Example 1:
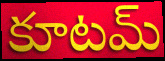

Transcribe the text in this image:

కూటమ్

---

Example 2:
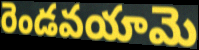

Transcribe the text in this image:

రెండవయామె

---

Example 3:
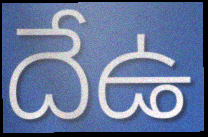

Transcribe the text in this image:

దేఉ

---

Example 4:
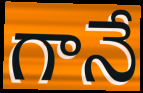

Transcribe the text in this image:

గానే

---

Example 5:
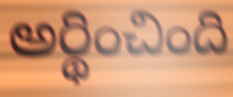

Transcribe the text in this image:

అర్థించింది